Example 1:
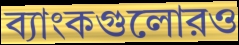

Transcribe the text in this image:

ব্যাংকগুলোরও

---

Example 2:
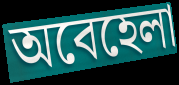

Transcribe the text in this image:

অবেহেলা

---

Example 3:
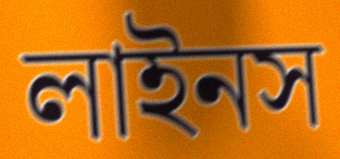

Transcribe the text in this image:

লাইনস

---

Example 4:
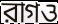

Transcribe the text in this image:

রাগও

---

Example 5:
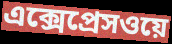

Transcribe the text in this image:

এক্সেপ্রেসওয়ে